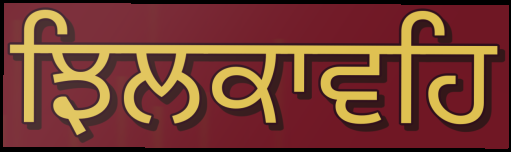
ਝਿਲਕਾਵਹਿ